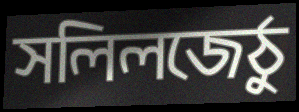
সলিলজেঠু